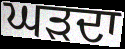
ਘੜਦਾ